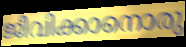
ജീവിക്കാനൊരു